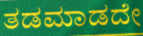
ತಡಮಾಡದೇ